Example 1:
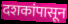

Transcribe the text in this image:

दशकांपासून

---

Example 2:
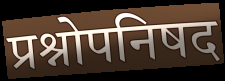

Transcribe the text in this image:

प्रश्नोपनिषद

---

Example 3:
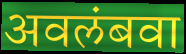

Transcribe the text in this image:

अवलंबवा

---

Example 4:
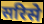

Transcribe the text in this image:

सरिसे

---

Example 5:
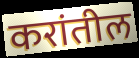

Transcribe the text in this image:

करांतील